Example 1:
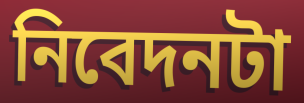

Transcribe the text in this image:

নিবেদনটা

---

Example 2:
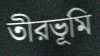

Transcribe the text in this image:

তীরভূমি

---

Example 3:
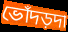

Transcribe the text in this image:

ভোঁদড়দা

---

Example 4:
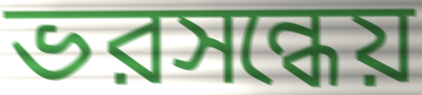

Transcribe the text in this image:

ভরসন্ধেয়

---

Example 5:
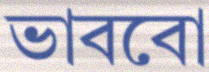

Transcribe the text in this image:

ভাববো